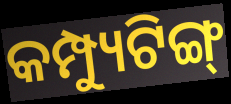
କମ୍ପ୍ୟୁଟିଙ୍ଗ୍